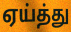
ஏய்த்து